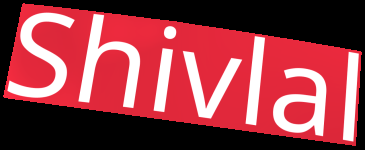
Shivlal